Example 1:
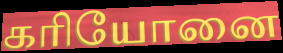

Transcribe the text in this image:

கரியோனை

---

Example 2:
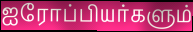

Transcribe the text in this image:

ஐரோப்பியர்களும்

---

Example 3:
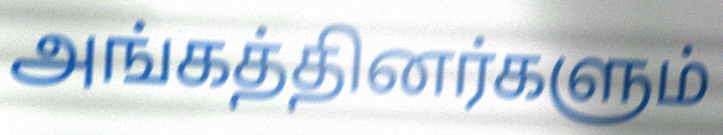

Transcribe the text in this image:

அங்கத்தினர்களும்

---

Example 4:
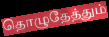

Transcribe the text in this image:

தொழுதேத்தும்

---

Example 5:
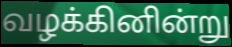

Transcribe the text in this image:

வழக்கினின்று